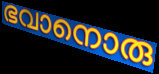
ഭവാനൊരു